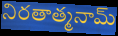
నిరతాత్మనామ్